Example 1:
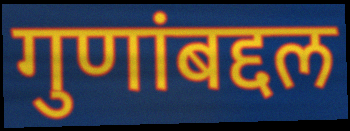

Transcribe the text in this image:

गुणांबद्दल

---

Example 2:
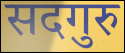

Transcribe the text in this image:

सदगुरु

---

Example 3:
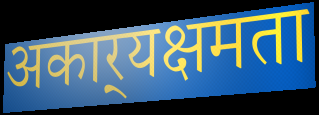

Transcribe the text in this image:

अकार्यक्षमता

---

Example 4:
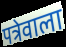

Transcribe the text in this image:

पत्रेवाला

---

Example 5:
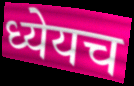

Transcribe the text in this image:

ध्येयच